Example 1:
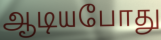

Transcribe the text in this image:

ஆடியபோது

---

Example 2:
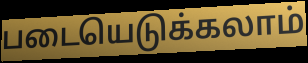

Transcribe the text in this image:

படையெடுக்கலாம்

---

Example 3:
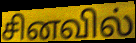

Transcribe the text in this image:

சினவில்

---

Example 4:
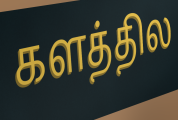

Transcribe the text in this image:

களத்தில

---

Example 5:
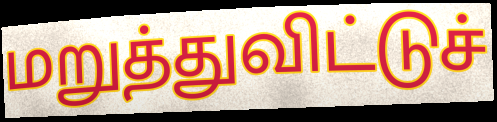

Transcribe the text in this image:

மறுத்துவிட்டுச்